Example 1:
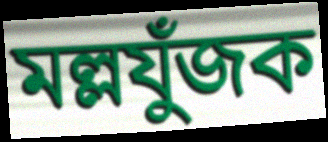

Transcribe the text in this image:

মল্লযুঁজক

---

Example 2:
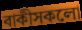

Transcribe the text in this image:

বাকীসকলো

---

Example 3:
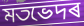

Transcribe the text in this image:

মতভেদৰ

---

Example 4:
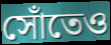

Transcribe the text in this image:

সোঁতেও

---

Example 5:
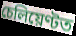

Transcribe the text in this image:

চেলিয়েণ্টত